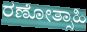
ರಣೋತ್ಸಾಹಿ